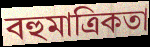
বহুমাত্রিকতা